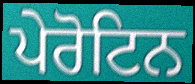
ਪੇਰੋਟਿਨ